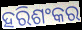
ହରିଶଂକର